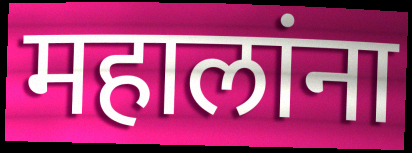
महालांना